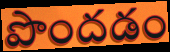
పొందడం